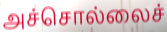
அச்சொல்லைச்